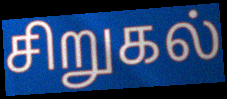
சிறுகல்